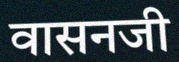
वासनजी